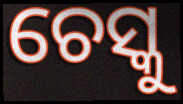
ଚେସ୍କୁ